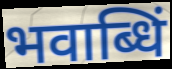
भवाब्धिं